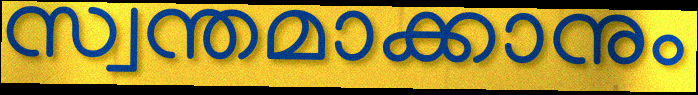
സ്വന്തമാക്കാനും